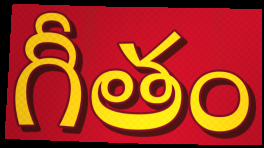
గీతం